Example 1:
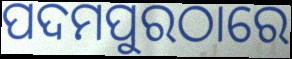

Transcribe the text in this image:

ପଦମପୁରଠାରେ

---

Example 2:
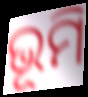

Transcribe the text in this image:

ଭୂମି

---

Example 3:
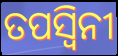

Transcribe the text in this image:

ତପସ୍ଵିନୀ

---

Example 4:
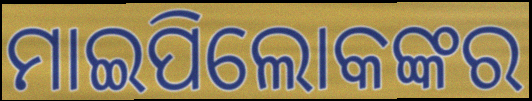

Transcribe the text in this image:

ମାଇପିଲୋକଙ୍କର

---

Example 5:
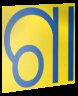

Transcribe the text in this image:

ଗା